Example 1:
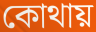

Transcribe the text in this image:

কোথায়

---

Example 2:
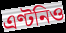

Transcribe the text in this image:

এণ্টনিও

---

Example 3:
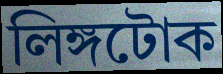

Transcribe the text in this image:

লিঙ্গটোক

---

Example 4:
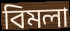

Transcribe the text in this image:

বিমলা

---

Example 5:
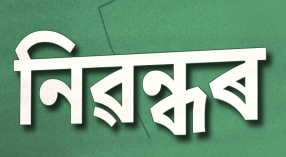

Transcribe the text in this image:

নিৱন্ধৰ